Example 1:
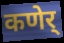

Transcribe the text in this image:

कणेर्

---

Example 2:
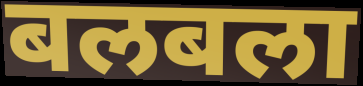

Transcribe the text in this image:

बलबला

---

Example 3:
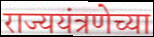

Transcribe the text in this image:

राज्ययंत्रणेच्या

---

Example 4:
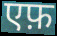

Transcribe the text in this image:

एफ़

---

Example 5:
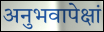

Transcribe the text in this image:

अनुभवापेक्षां